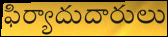
ఫిర్యాదుదారులు